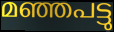
മഞ്ഞപട്ടു